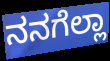
ನನಗೆಲ್ಲಾ